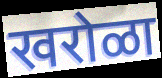
खरोळा